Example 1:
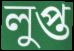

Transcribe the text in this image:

লুপ্ত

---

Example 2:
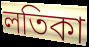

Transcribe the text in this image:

লতিকা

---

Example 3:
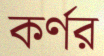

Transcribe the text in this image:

কর্ণর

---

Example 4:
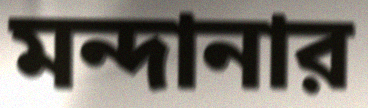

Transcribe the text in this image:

মন্দানার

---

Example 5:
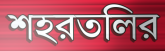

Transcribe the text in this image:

শহরতলির